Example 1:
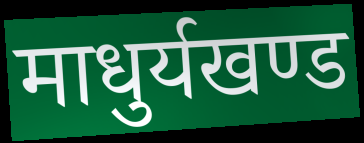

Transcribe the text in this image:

माधुर्यखण्ड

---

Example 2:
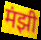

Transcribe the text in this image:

मंझी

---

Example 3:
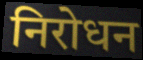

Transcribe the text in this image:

निरोधन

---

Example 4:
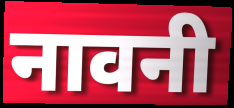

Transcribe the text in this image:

नावनी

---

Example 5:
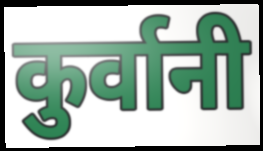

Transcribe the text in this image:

कुर्वानी